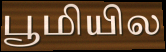
பூமியில